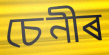
চেনীৰ